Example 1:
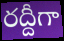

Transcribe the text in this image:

రద్దీగా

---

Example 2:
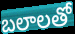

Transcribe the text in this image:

బలాలతో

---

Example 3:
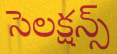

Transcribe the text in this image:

సెలక్షన్స్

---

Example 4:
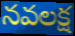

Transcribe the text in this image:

నవలక్ష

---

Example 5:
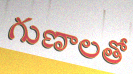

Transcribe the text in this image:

గుణాలతో